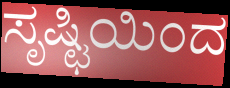
ಸೃಷ್ಟಿಯಿಂದ